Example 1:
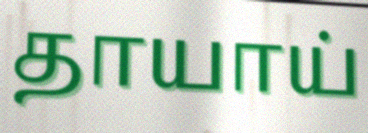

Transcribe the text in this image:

தாயாய்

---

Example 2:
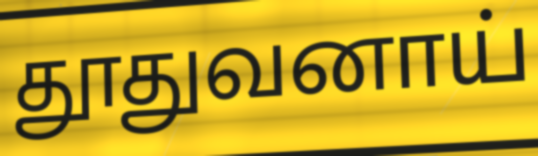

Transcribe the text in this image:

தூதுவனாய்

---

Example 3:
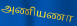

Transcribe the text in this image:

அணியணா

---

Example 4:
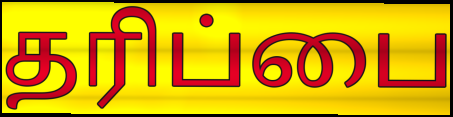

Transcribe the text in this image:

தரிப்பை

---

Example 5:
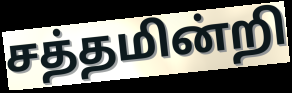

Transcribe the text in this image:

சத்தமின்றி